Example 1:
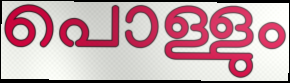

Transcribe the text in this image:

പൊള്ളും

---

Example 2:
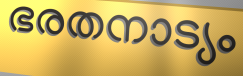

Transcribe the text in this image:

ഭരതനാട്യം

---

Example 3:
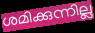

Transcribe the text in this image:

ശമിക്കുന്നില്ല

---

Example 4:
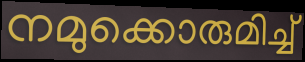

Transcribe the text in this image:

നമുക്കൊരുമിച്ച്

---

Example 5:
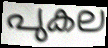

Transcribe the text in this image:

പുകല